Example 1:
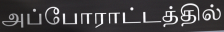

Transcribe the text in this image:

அப்போராட்டத்தில்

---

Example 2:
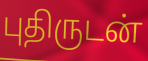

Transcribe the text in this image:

புதிருடன்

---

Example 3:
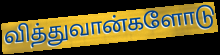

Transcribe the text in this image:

வித்துவான்களோடு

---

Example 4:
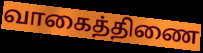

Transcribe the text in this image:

வாகைத்திணை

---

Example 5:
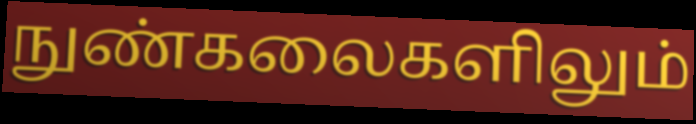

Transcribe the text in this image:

நுண்கலைகளிலும்